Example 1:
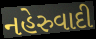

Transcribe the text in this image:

નહેરુવાદી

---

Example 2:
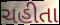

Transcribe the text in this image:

ચહીતા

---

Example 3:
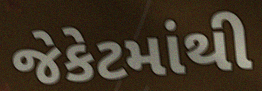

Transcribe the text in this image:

જેકેટમાંથી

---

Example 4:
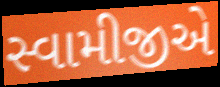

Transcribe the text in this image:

સ્વામીજીએ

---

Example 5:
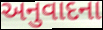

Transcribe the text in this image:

અનુવાદના